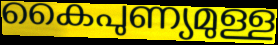
കൈപുണ്യമുള്ള